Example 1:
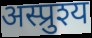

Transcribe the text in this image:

अस्प्रुश्य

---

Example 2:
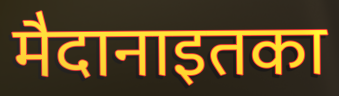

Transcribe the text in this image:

मैदानाइतका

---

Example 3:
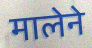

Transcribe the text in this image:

मालेने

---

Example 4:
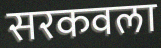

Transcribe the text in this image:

सरकवला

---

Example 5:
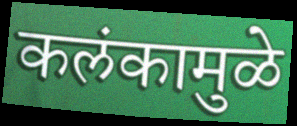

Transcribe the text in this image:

कलंकामुळे